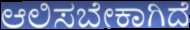
ಆಲಿಸಬೇಕಾಗಿದೆ